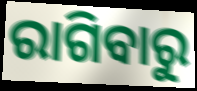
ରାଗିବାରୁ